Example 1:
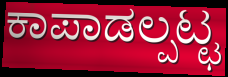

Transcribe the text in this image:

ಕಾಪಾಡಲ್ಪಟ್ಟ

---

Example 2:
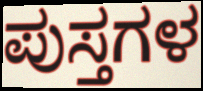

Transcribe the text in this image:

ಪುಸ್ತಗಳ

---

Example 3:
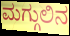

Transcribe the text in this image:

ಮಗ್ಗುಲಿನ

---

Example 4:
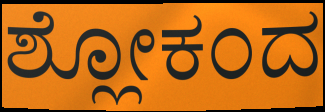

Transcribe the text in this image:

ಶ್ಲೋಕಂದ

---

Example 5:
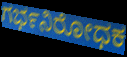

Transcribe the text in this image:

ಗರ್ಭನಿರೋಧಕ